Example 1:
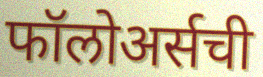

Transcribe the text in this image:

फॉलोअर्सची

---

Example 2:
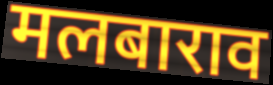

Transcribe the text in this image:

मलबाराव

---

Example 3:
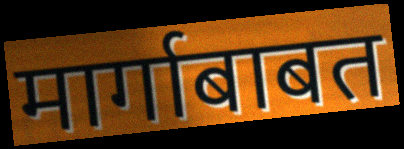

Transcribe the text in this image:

मार्गाबाबत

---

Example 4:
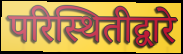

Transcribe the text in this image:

परिस्थितीद्वारे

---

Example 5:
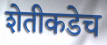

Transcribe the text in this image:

शेतीकडेच